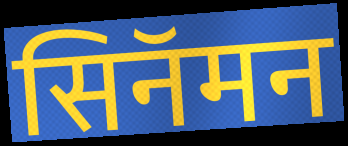
सिनॅमन